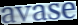
avase